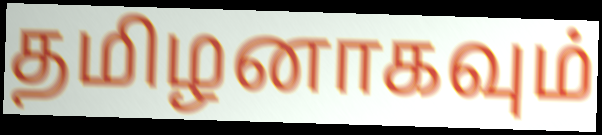
தமிழனாகவும்